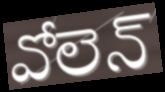
వోలెన్